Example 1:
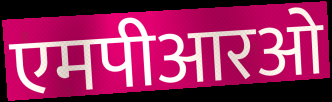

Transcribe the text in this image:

एमपीआरओ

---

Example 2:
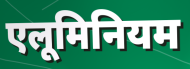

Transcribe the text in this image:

एलूमिनियम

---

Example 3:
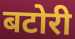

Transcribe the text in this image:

बटोरी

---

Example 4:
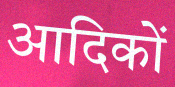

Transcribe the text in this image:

आदिकों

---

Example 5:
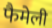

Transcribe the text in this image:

फैमेली